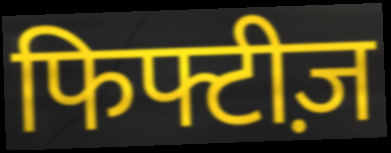
फिफ्टीज़